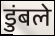
डुंबले